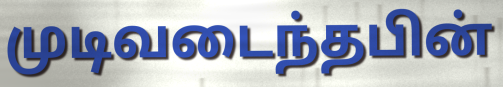
முடிவடைந்தபின்